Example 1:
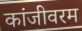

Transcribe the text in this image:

कांजीवरम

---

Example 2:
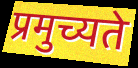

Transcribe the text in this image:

प्रमुच्यते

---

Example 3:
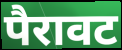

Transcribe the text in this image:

पैरावट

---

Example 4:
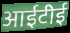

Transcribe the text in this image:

आईटीई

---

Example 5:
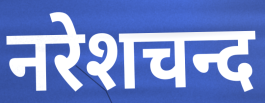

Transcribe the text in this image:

नरेशचन्द